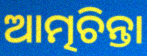
ଆତ୍ମଚିନ୍ତା